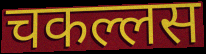
चकल्लस